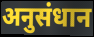
अनुसंधान